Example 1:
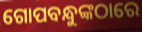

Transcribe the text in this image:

ଗୋପବନ୍ଧୁଙ୍କଠାରେ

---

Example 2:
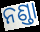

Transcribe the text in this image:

ନଣ୍ଡା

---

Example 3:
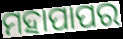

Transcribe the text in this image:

ମହାପାପର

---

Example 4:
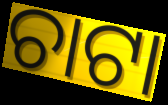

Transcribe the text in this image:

ଚାଟା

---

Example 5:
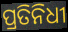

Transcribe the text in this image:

ପ୍ରତିନିଧୀ